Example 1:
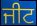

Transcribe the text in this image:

ਜੀਟ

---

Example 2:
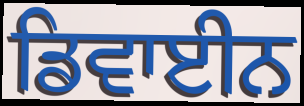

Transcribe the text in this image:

ਡਿਵਾਈਨ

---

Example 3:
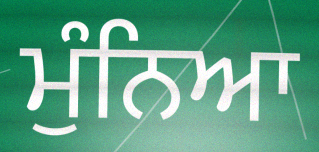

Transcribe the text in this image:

ਮੁੰਨਿਆ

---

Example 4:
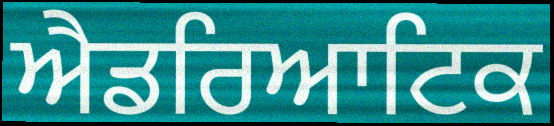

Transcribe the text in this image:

ਐਡਰਿਆਟਿਕ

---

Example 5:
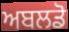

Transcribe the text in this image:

ਅਬਲਡੋ